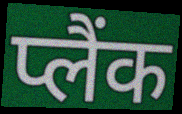
प्लैंक